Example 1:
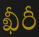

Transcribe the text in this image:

ఖీరీ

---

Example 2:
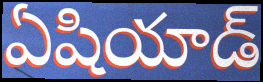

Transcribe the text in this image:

ఏషియాడ్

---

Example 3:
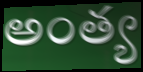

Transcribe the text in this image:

అంత్య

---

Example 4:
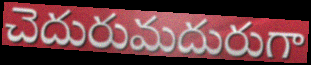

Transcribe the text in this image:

చెదురుమదురుగా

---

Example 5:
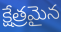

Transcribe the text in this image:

క్షేత్రమైన